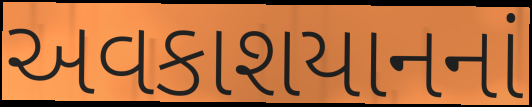
અવકાશયાનનાં